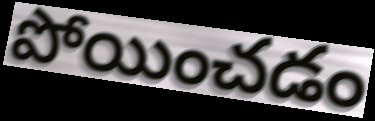
పోయించడం